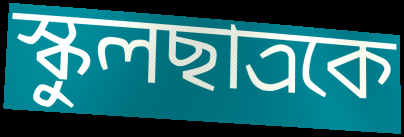
স্কুলছাত্রকে